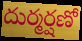
దుర్మర్షణో